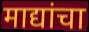
माद्यांचा